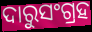
ଦାରୁସଂଗ୍ରହ